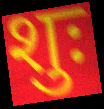
शुः